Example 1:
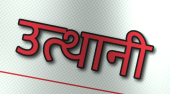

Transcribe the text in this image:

उत्थानी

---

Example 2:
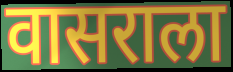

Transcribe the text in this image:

वासराला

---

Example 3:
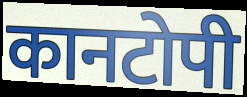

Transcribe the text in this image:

कानटोपी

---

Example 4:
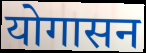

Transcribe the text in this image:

योगासन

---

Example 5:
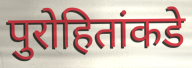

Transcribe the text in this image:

पुरोहितांकडे